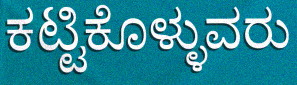
ಕಟ್ಟಿಕೊಳ್ಳುವರು